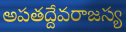
అపతద్దేవరాజస్య